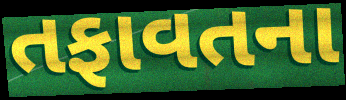
તફાવતના